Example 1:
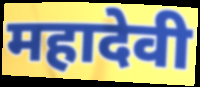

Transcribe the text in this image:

महादेवी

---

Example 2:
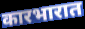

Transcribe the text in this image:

कारभारात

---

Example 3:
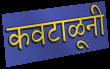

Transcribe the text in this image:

कवटाळूनी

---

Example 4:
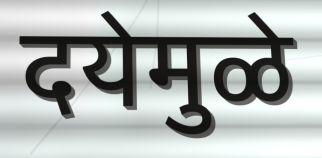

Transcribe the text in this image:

दयेमुळे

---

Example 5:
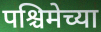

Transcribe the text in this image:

पश्चिमेच्या